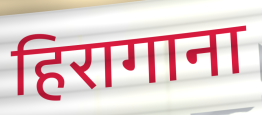
हिरागाना